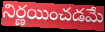
నిర్ణయించడమే